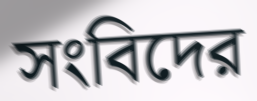
সংবিদের